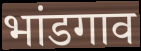
भांडगाव